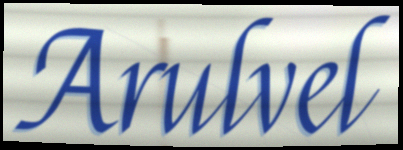
Arulvel